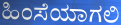
ಹಿಂಸೆಯಾಗಲಿ